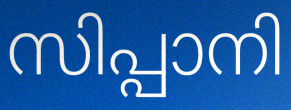
സിപ്പാനി